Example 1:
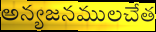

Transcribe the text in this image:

అన్యజనములచేత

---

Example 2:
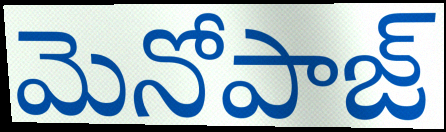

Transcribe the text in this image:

మెనోపాజ్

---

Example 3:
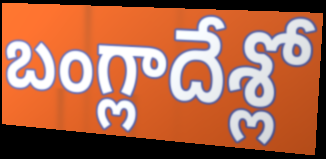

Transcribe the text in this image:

బంగ్లాదేశ్లో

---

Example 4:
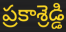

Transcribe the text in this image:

ప్రకాశ్రెడ్డి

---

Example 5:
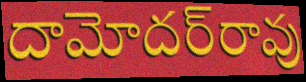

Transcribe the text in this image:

దామోదర్‌రావు